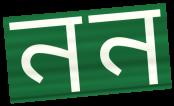
নন